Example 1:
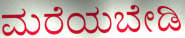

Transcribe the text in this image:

ಮರೆಯಬೇಡಿ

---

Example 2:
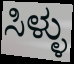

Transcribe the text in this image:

ಸಿಳ್ಳು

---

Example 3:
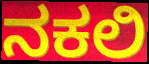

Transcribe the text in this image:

ನಕಲಿ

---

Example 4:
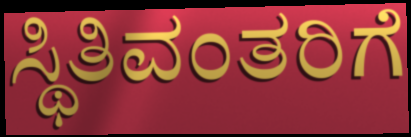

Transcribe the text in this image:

ಸ್ಥಿತಿವಂತರಿಗೆ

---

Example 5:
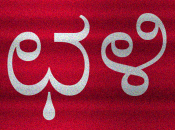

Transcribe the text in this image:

ಛಳಿ